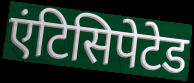
एंटिसिपेटेड